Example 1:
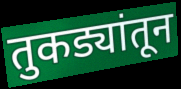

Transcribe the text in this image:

तुकड्यांतून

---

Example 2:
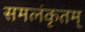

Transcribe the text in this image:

समलंकृतम्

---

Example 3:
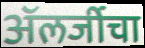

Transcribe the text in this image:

ॲलर्जीचा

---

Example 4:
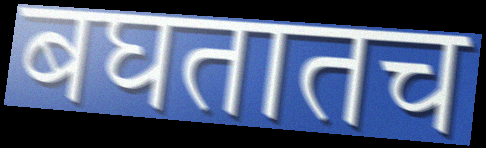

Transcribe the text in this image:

बघतातच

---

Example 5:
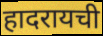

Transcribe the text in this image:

हादरायची